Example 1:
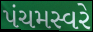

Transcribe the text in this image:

પંચમસ્વરે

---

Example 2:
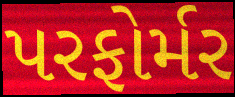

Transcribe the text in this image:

પરફોર્મર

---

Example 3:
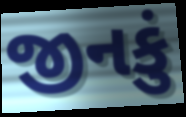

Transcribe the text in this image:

જીનકું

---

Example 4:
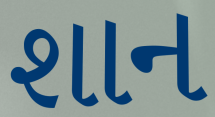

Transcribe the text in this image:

શાન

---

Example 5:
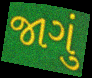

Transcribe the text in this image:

જાગું